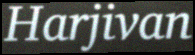
Harjivan